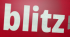
blitz